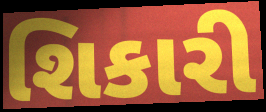
શિકારી